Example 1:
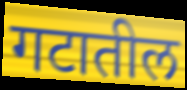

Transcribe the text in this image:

गटातील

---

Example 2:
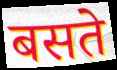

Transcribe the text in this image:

बसते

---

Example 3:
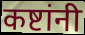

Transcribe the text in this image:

कष्टांनी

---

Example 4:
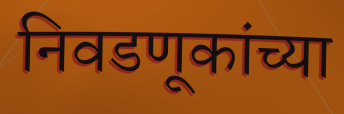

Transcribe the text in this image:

निवडणूकांच्या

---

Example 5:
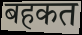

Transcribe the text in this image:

बहकत